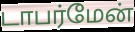
டாபர்மேன்